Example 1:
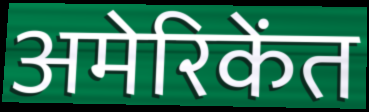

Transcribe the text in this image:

अमेरिकेंत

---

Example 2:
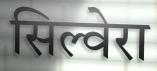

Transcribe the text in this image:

सिल्वेरा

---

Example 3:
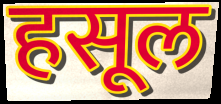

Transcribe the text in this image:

हसूल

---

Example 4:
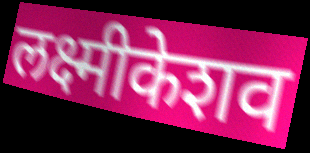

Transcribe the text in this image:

लक्ष्मीकेशव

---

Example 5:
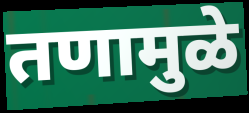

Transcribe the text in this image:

तणामुळे